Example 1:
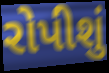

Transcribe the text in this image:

રોપીશું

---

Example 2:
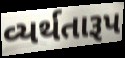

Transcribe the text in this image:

વ્યર્થતારૂપ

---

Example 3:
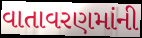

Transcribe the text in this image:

વાતાવરણમાંની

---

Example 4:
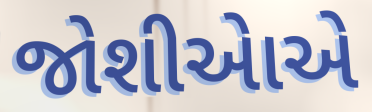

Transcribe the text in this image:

જોશીએાએ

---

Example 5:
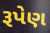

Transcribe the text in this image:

રૂપેણ